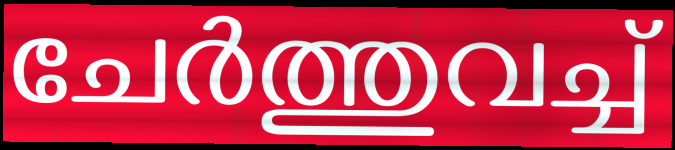
ചേർത്തുവച്ച്